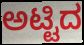
ಅಟ್ಟಿದ